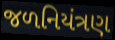
જળનિયંત્રણ